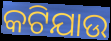
କଟିଯାଉ